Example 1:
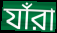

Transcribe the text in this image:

যাঁরা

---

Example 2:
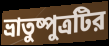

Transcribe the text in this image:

ভ্রাতুষ্পুত্রটির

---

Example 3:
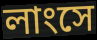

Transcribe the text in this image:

লাংসে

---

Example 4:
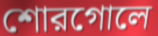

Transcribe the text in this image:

শোরগোলে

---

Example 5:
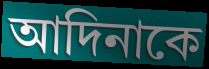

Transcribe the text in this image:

আদিনাকে